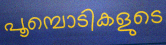
പൂമ്പൊടികളുടെ